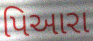
પિઆરા